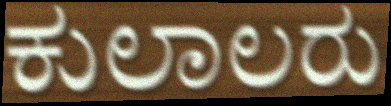
ಕುಲಾಲರು